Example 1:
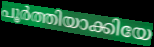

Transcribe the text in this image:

പൂർത്തിയാക്കിയേ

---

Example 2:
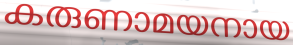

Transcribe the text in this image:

കരുണാമയനായ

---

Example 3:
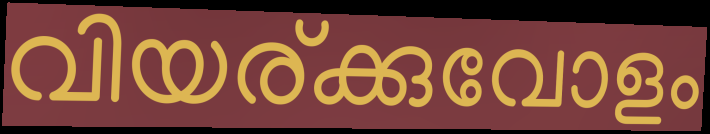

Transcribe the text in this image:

വിയര്ക്കുവോളം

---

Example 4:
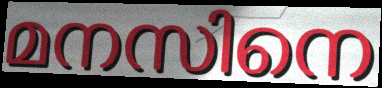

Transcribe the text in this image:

മനസിനെ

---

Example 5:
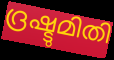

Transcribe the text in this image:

ദ്രഷ്ടുമിതി